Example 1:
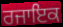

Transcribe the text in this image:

ਰਜਾਇਕ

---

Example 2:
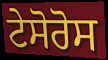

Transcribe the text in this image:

ਟੇਸੋਰੋਸ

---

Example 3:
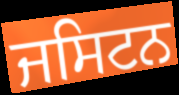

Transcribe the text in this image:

ਜਸਿਟਨ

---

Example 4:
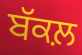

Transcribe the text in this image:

ਬੱਕਲ਼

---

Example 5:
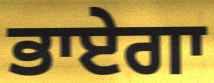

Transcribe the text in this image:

ਭਾਏਗਾ